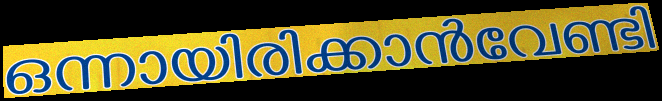
ഒന്നായിരിക്കാൻവേണ്ടി